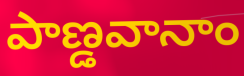
పాణ్డవానాం